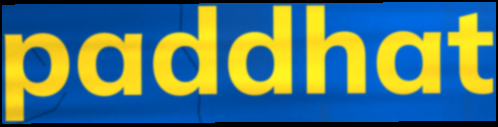
paddhat